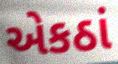
એકઠાં